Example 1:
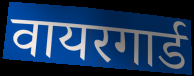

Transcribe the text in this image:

वायरगार्ड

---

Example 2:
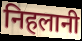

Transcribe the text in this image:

निहलानी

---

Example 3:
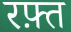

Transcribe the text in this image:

रफ़्त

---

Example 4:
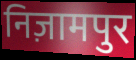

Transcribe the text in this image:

निज़ामपुर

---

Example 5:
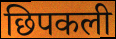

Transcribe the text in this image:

छिपकली